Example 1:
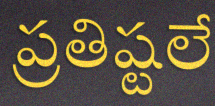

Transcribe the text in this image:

ప్రతిష్టలే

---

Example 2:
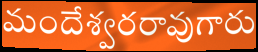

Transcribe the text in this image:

మందేశ్వరరావుగారు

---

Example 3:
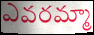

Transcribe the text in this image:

ఎవరమ్మా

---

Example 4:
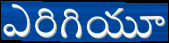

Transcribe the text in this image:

ఎరిగియూ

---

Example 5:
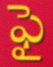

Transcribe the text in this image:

ఫై